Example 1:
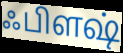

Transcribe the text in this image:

ஃபிளஷ்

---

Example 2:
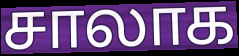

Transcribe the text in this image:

சாலாக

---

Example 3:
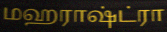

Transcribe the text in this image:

மஹராஷ்ட்ரா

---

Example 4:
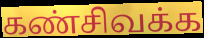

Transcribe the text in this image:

கண்சிவக்க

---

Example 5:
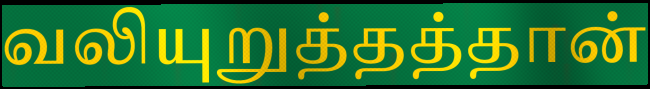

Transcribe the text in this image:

வலியுறுத்தத்தான்